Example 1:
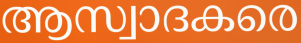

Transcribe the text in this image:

ആസ്വാദകരെ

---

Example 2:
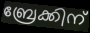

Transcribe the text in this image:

ബ്രേക്കിന്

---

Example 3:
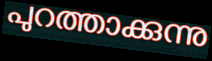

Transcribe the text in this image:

പുറത്താക്കുന്നു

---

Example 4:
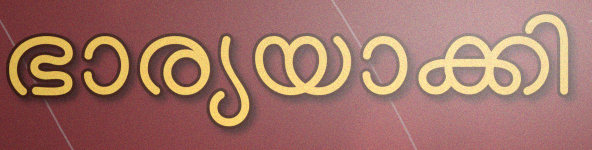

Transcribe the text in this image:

ഭാര്യയാക്കി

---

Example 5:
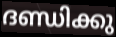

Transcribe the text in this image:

ദണ്ഡിക്കു